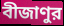
বীজাণুর